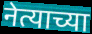
नेत्याच्या